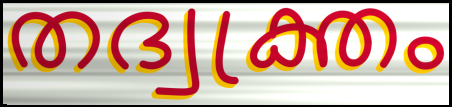
തദ്വക്ത്രം